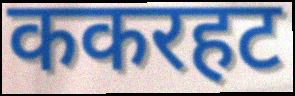
ककरहट